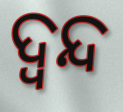
ଦ୍ବନ୍ଦ